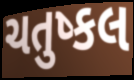
ચતુષ્કલ